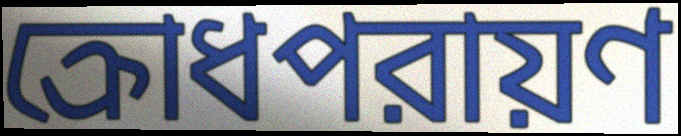
ক্রোধপরায়ণ